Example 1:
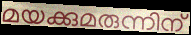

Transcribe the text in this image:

മയക്കുമരുന്നിന്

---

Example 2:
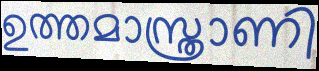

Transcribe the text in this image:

ഉത്തമാസ്ത്രാണി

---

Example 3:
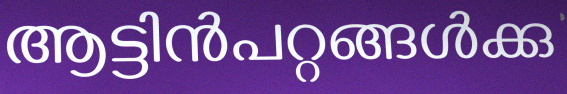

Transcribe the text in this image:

ആട്ടിൻപറ്റങ്ങൾക്കു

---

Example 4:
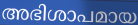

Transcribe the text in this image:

അഭിശാപമായ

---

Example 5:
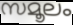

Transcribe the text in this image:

സമൂലം